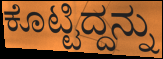
ಕೊಟ್ಟಿದ್ದನ್ನು